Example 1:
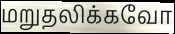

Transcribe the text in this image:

மறுதலிக்கவோ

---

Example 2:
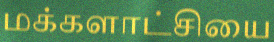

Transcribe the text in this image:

மக்களாட்சியை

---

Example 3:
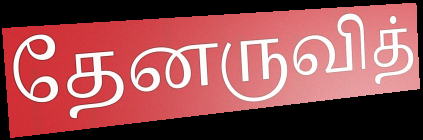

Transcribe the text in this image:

தேனருவித்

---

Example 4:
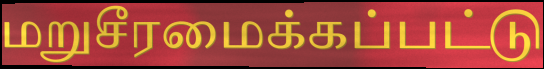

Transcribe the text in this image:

மறுசீரமைக்கப்பட்டு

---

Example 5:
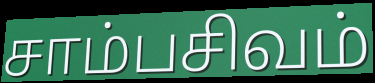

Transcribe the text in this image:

சாம்பசிவம்